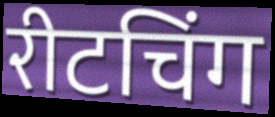
रीटचिंग